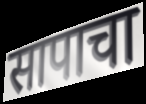
सापाचा